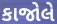
કાજોલે